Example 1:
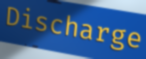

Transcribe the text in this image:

Discharge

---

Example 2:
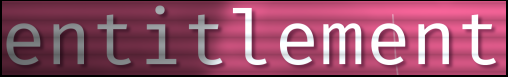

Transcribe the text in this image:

entitlement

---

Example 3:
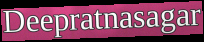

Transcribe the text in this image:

Deepratnasagar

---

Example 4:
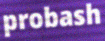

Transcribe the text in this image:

probash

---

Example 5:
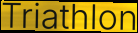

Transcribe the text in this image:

Triathlon